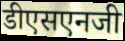
डीएसएनजी